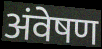
अंवेषण